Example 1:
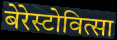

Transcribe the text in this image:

बेरेस्टोवित्सा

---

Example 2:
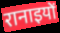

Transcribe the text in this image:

रानाइयों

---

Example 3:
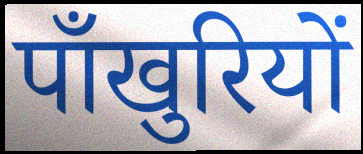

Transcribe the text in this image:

पाँखुरियों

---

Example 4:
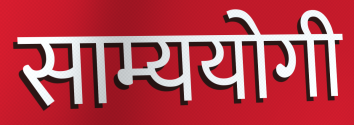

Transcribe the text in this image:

साम्ययोगी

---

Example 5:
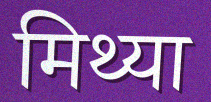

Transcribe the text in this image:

मिथ्या